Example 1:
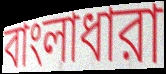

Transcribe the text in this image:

বাংলাধারা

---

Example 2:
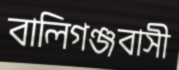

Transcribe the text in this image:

বালিগঞ্জবাসী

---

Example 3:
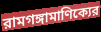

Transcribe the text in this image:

রামগঙ্গামাণিক্যের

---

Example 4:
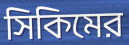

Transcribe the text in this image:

সিকিমের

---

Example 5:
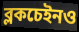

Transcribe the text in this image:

ব্লকচেইনও